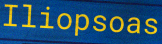
Iliopsoas